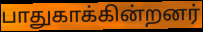
பாதுகாக்கின்றனர்